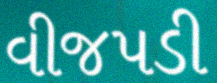
વીજપડી